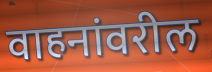
वाहनांवरील